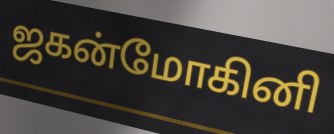
ஜகன்மோகினி